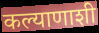
कल्याणाशी